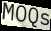
MOQs